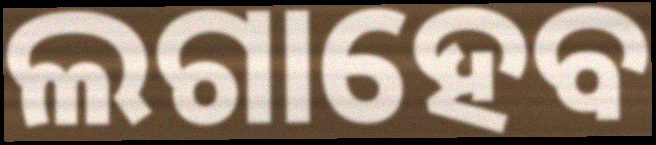
ଲଗାହେବ